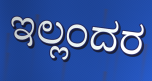
ಇಲ್ಲಂದರ